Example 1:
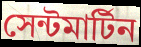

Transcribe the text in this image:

সেন্টমার্টিন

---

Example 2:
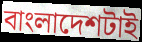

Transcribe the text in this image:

বাংলাদেশটাই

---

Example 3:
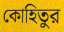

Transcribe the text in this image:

কোহিতুর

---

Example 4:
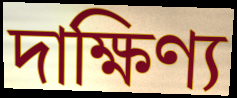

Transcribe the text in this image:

দাক্ষিণ্য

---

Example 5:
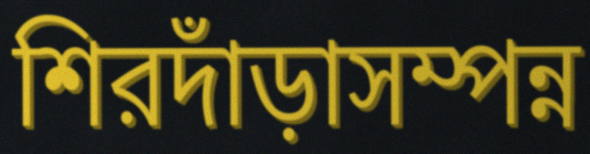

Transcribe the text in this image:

শিরদাঁড়াসম্পন্ন